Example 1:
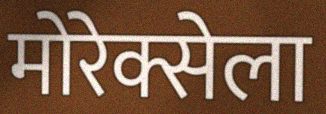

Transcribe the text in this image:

मोरेक्सेला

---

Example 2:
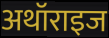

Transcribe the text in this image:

अथॉराइज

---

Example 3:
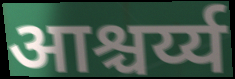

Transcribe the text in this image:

आश्चर्य्य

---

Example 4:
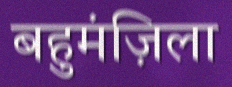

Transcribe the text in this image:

बहुमंज़िला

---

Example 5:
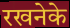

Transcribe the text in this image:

रखनेके